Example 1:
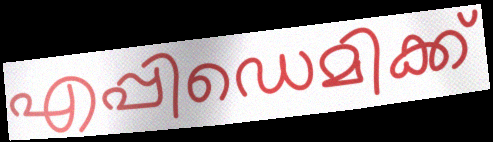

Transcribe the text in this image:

എപ്പിഡെമിക്ക്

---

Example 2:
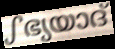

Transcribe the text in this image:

ഽഭ്യയാദ്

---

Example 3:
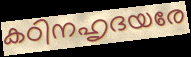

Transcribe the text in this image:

കഠിനഹൃദയരേ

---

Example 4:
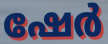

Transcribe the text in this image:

ഷേർ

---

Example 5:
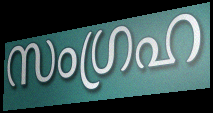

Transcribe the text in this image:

സംഗ്രഹ